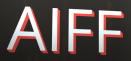
AIFF